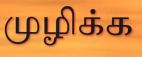
முழிக்க